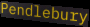
Pendlebury